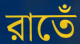
রাতেঁ